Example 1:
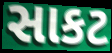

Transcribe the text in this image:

સાકટ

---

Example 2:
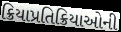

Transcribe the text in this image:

ક્રિયાપ્રતિક્રિયાઓની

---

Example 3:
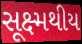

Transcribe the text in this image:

સૂક્ષ્મથીય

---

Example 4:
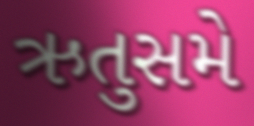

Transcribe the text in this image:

ઋતુસમે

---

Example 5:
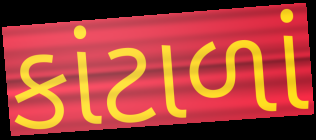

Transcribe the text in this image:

કાંટાળાં